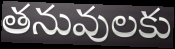
తనువులకు